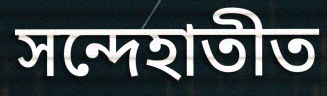
সন্দেহাতীত